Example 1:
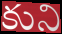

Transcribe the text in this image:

కుని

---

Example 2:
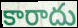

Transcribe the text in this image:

కారాదు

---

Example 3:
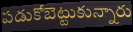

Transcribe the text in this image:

పడుకోబెట్టుకున్నారు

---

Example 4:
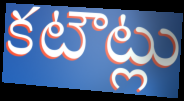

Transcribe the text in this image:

కటౌట్లు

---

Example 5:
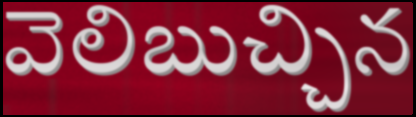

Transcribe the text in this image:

వెలిబుచ్చిన